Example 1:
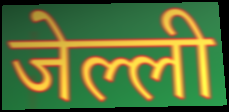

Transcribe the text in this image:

जेल्ली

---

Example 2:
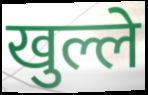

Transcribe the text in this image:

खुल्ले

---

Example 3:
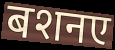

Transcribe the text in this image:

बशनए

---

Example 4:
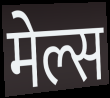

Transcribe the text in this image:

मेल्स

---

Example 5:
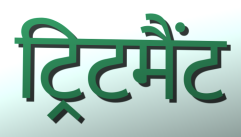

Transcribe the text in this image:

ट्रिटमैंट